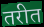
तरीत